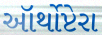
ઑર્થોપ્ટેરા